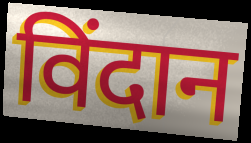
विंदान